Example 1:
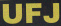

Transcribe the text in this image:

UFJ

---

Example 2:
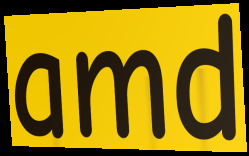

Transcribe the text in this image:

amd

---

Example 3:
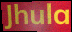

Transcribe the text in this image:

Jhula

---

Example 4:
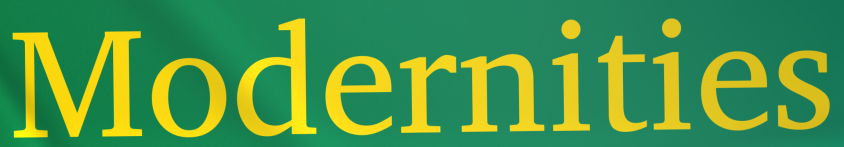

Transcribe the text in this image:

Modernities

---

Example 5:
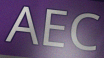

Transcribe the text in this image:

AEC